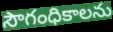
సౌగంధికాలను